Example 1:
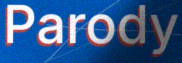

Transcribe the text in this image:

Parody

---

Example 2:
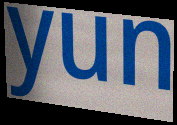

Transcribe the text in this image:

yun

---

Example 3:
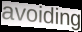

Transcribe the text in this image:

avoiding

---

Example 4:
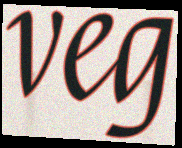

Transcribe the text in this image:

veg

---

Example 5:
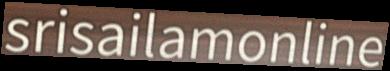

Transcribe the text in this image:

srisailamonline